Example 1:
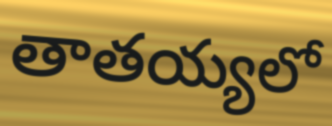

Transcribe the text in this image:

తాతయ్యలో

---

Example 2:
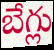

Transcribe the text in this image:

బేగ్లు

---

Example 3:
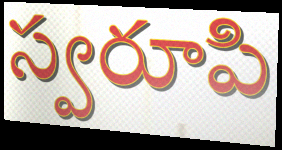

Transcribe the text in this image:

స్వరూపి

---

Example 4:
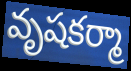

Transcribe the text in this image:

వృషకర్మా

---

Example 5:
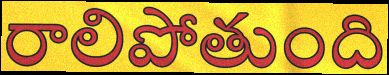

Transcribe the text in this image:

రాలిపోతుంది